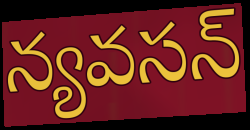
న్యవసన్